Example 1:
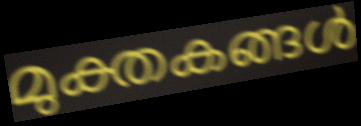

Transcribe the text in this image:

മുക്തകങ്ങൾ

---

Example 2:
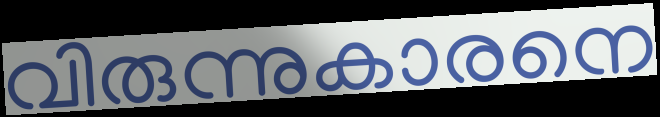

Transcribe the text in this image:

വിരുന്നുകാരനെ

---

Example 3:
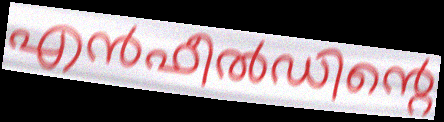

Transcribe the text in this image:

എൻഫീൽഡിന്റെ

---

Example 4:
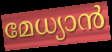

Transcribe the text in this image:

മേധ്യാൻ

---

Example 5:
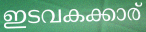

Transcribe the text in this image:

ഇടവകക്കാര്